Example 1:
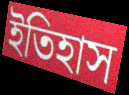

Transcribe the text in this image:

ইতিহাস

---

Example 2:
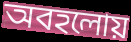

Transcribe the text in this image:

অবহলোয়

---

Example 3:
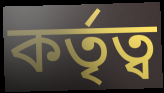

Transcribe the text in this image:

কর্তৃত্ব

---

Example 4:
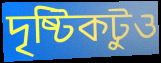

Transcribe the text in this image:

দৃষ্টিকটুও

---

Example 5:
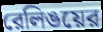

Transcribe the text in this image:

রেলিঙয়ের